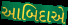
આબિદાએ